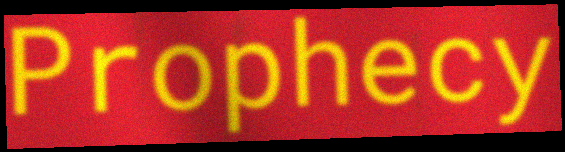
Prophecy